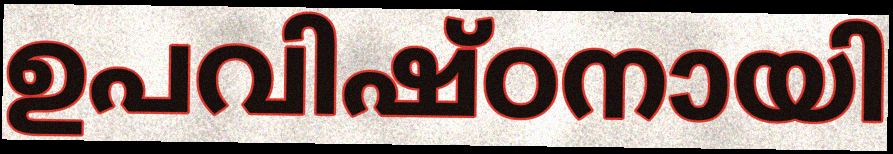
ഉപവിഷ്ഠനായി